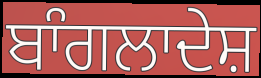
ਬਾੰਗਲਾਦੇਸ਼